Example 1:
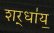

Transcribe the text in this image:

शर्धा॑य॒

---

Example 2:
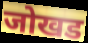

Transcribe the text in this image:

जोखड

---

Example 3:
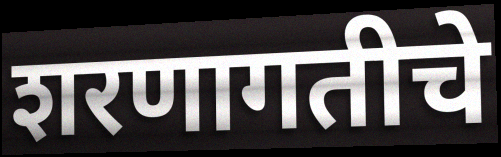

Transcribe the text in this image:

शरणागतीचे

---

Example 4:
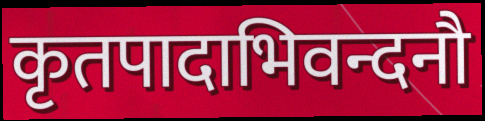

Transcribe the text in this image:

कृतपादाभिवन्दनौ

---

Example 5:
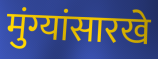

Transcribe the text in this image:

मुंग्यांसारखे